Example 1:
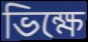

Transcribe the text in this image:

ভিক্ষে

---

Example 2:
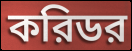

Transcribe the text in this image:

করিডর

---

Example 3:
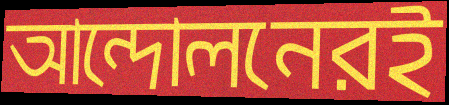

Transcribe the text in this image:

আন্দোলনেরই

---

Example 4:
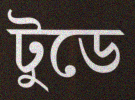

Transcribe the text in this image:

টুডে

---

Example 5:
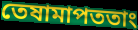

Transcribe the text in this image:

তেষামাপততাং